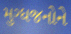
મુગ્ધજનોને